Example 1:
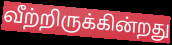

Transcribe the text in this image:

வீற்றிருக்கின்றது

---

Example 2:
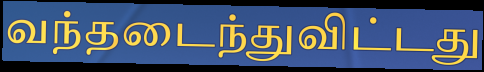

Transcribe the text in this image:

வந்தடைந்துவிட்டது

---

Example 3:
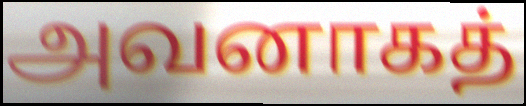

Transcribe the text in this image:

அவனாகத்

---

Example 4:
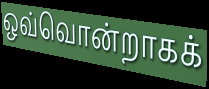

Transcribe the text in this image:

ஒவ்வொன்றாகக்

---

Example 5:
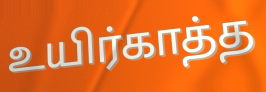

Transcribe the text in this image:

உயிர்காத்த